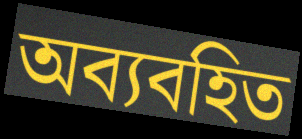
অব্যবহিত